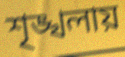
শৃঙ্খলায়